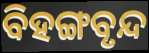
ବିହଙ୍ଗବୃନ୍ଦ